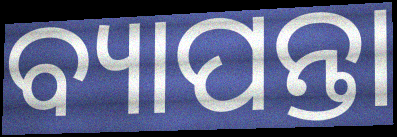
ବ୍ୟାପନ୍ତା